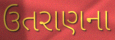
ઉતરાણના